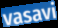
vasavi